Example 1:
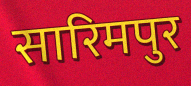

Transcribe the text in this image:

सारिमपुर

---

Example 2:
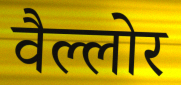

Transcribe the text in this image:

वैल्लोर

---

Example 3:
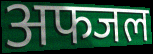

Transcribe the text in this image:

अफजल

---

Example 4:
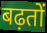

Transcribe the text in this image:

बढ़तों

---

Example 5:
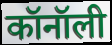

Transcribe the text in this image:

कॉनॉली